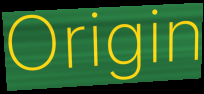
Origin